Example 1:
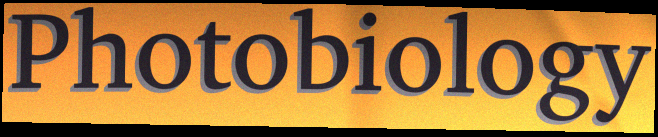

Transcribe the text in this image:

Photobiology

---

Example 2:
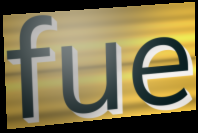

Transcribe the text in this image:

fue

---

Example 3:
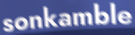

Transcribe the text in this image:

sonkamble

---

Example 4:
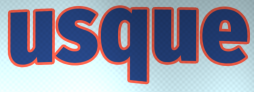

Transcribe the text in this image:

usque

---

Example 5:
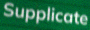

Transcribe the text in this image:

Supplicate